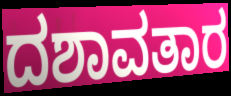
ದಶಾವತಾರ